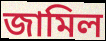
জামিল